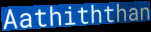
Aathiththan